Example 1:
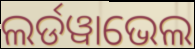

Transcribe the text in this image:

ଲର୍ଡୱାଭେଲ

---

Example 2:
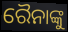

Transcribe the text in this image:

ରୈନାଙ୍କୁ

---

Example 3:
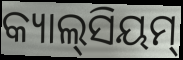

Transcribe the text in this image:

କ୍ୟାଲ୍‌ସିୟମ୍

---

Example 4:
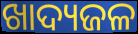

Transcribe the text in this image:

ଖାଦ୍ୟଜଳ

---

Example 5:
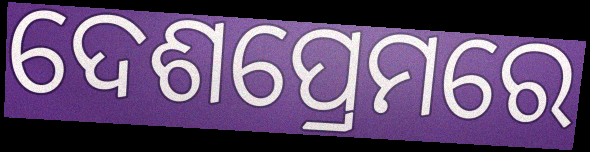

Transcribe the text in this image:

ଦେଶପ୍ରେମରେ